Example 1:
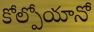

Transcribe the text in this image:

కోల్పోయానో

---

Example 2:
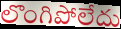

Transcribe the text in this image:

లొంగిపోలేదు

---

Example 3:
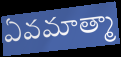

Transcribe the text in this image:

ఏవమాత్మా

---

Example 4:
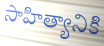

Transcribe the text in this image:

సాహిత్యానికి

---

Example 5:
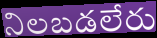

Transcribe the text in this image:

నిలబడలేరు